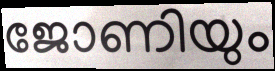
ജോണിയും